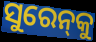
ସୁରେନ୍‌କୁ